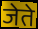
जेते